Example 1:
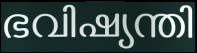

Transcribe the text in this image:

ഭവിഷ്യന്തി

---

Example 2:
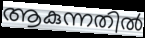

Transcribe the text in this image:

ആകുന്നതിൽ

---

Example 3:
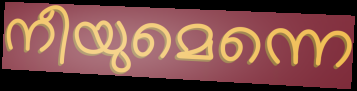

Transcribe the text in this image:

നീയുമെന്നെ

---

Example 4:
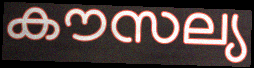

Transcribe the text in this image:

കൗസല്യ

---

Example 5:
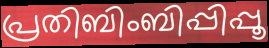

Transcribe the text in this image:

പ്രതിബിംബിപ്പിപ്പൂ